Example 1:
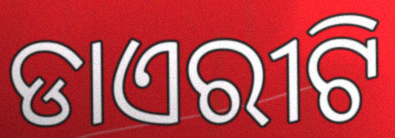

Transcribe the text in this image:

ଡାଏରୀଟି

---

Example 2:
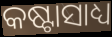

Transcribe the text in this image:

କଷ୍ଟାସାଧ୍ୟ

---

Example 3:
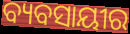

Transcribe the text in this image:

ବ୍ୟବସାୟୀର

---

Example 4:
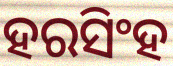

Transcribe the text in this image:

ହରସିଂହ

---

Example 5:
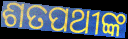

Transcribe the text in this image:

ଶତପଥୀଙ୍କ